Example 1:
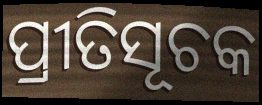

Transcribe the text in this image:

ପ୍ରୀତିସୂଚକ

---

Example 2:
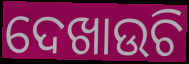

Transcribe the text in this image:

ଦେଖାଉଚି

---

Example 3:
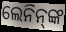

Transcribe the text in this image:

ଲେନିନ୍‌ଙ୍କ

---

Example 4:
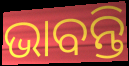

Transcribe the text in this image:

ଭାବନ୍ତି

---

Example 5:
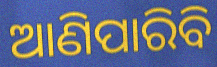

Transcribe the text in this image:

ଆଣିପାରିବି